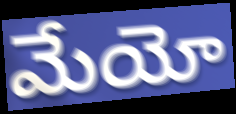
మేయో